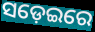
ସଡ଼େଇରେ